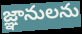
జ్ఞానులను